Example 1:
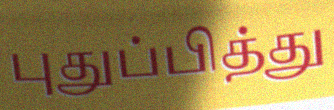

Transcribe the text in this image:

புதுப்பித்து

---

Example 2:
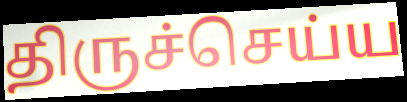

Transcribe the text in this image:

திருச்செய்ய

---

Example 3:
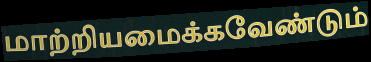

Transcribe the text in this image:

மாற்றியமைக்கவேண்டும்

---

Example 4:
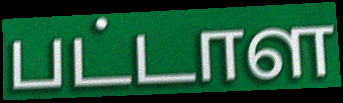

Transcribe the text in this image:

பட்டாள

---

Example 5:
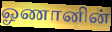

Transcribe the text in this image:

ஓணானின்